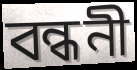
বন্ধনী